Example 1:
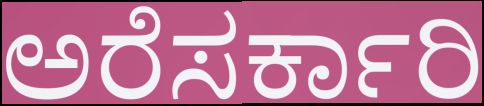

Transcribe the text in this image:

ಅರೆಸರ್ಕಾರಿ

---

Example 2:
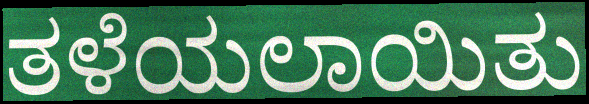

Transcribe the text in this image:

ತಳೆಯಲಾಯಿತು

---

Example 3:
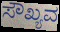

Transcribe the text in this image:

ಸೌಖ್ಯವ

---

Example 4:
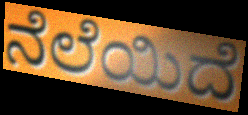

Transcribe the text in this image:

ನೆಲೆಯಿದೆ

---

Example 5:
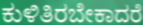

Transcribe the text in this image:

ಕುಳಿತಿರಬೇಕಾದರೆ